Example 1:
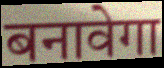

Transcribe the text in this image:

बनावेगा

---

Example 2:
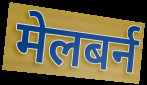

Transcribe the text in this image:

मेलबर्न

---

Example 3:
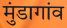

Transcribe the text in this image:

मुंडागांव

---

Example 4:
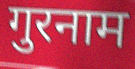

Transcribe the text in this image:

गुरनाम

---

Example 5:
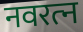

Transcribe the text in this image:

नवरत्‍न